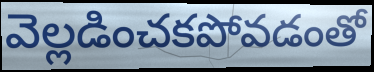
వెల్లడించకపోవడంతో